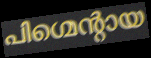
പിഗ്മെന്റായ